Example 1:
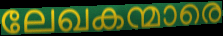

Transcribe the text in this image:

ലേഖകന്മാരെ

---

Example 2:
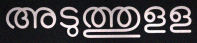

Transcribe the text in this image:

അടുത്തുളള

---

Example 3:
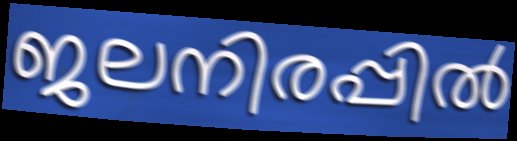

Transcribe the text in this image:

ജലനിരപ്പിൽ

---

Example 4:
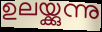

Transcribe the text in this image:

ഉലയ്ക്കുന്നു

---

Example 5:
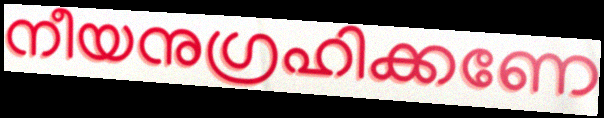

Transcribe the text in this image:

നീയനുഗ്രഹിക്കണേ